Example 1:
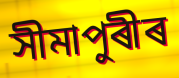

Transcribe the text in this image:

সীমাপুৰীৰ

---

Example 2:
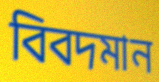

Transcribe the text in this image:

বিবদমান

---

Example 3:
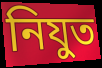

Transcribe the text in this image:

নিযুত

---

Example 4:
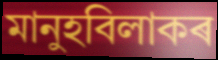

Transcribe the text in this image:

মানুহবিলাকৰ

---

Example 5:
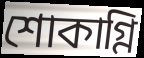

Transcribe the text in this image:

শোকাগ্নি